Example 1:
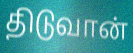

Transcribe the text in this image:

திடுவான்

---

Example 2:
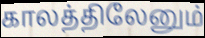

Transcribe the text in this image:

காலத்திலேனும்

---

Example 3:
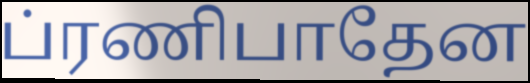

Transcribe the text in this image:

ப்ரணிபாதேன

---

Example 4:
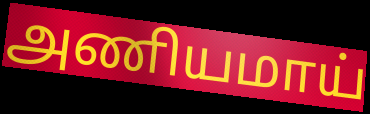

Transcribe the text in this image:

அணியமாய்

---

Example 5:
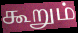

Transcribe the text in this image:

கூறும்